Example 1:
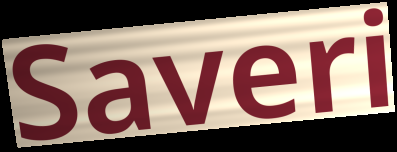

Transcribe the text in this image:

Saveri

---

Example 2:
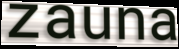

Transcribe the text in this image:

zauna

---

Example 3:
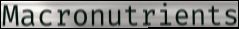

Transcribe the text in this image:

Macronutrients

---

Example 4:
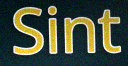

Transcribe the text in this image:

Sint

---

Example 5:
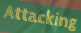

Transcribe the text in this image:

Attacking